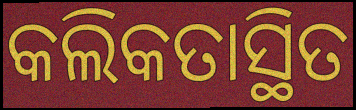
କଲିକତାସ୍ଥିତ